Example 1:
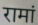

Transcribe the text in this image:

रामां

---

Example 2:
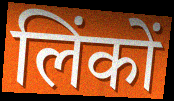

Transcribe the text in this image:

लिंकों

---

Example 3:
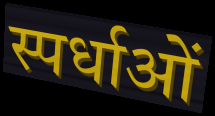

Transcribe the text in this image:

स्‍पर्धाओं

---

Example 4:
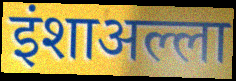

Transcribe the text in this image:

इंशाअल्ला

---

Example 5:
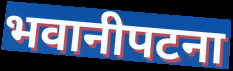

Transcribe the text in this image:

भवानीपटना